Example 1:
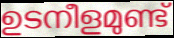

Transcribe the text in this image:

ഉടനീളമുണ്ട്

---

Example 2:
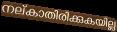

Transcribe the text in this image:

നല്‌കാതിരിക്കുകയില്ല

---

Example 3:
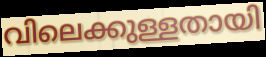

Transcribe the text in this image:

വിലെക്കുള്ളതായി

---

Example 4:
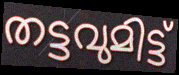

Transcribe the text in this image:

തട്ടവുമിട്ട്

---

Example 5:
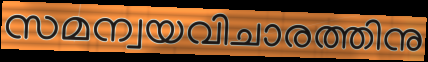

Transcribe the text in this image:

സമന്വയവിചാരത്തിനു